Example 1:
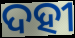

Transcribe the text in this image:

ଦହୀ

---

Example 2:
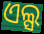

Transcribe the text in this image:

ଏଲ୍ସ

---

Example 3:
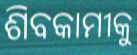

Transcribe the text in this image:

ଶିବକାମୀକୁ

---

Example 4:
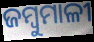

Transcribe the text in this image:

ଜମ୍ବୁମାଳୀ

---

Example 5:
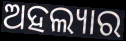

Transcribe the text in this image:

ଅହଲ୍ୟାର